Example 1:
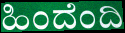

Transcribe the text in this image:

ಹಿಂದೆಂದಿ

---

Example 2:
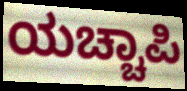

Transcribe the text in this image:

ಯಚ್ಚಾಪಿ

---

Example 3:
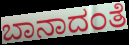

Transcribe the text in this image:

ಬಾನಾದಂತೆ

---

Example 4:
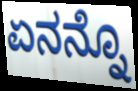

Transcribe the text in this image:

ಏನನ್ನೊ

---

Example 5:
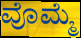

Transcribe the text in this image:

ವೊಮ್ಮೆ